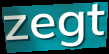
zegt